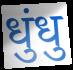
धुंधु